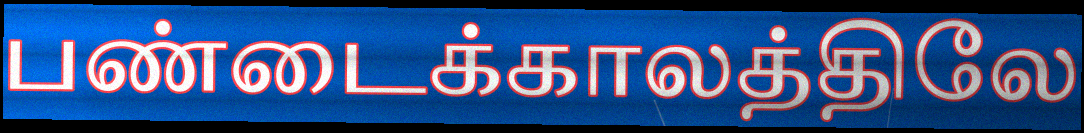
பண்டைக்காலத்திலே